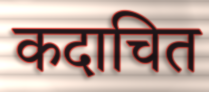
कदाचित